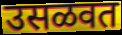
उसळवत